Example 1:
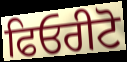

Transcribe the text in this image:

ਫਿਓਰੀਟੋ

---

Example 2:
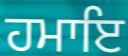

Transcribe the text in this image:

ਹਮਾਇ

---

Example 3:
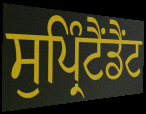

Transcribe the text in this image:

ਸੁਪ੍ਰਿੰਟੈਂਡੈਂਟ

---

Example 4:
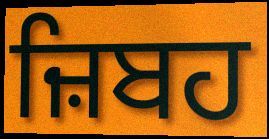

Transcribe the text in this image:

ਜ਼ਿਬਹ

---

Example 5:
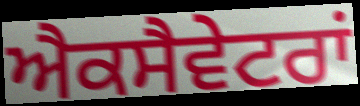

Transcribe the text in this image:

ਐਕਸੈਵੇਟਰਾਂ